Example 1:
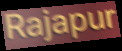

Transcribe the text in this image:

Rajapur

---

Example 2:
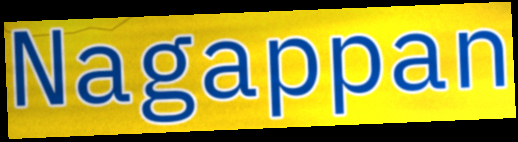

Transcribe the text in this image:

Nagappan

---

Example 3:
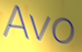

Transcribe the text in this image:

Avo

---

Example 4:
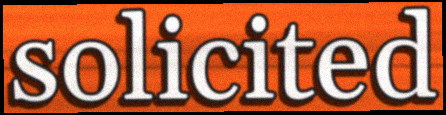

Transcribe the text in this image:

solicited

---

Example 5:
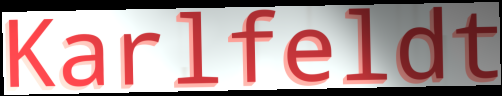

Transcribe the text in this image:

Karlfeldt